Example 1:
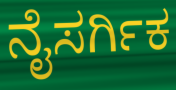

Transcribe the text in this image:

ನೈಸರ್ಗಿಕ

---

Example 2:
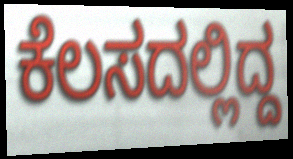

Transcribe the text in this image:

ಕೆಲಸದಲ್ಲಿದ್ದ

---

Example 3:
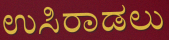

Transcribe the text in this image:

ಉಸಿರಾಡಲು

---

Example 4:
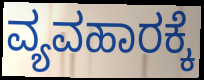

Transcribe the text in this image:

ವ್ಯವಹಾರಕ್ಕೆ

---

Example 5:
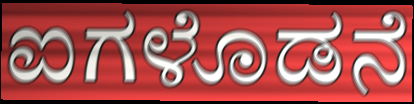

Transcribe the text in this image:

ಐಗಳೊಡನೆ